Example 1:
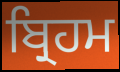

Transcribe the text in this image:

ਬ੍ਰਿਹਮ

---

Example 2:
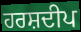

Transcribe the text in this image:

ਹਰਸ਼ਦੀਪ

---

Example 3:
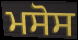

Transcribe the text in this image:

ਮਸੋਸ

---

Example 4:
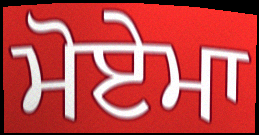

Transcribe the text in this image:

ਮੋਏਮਾ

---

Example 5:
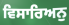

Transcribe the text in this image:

ਵਿਸਾਰਿਅਨੁ